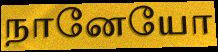
நானேயோ